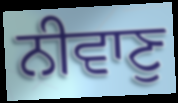
ਨੀਵਾਣੁ